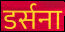
डर्सना